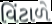
વિંટાળે